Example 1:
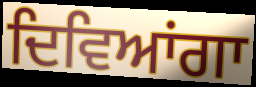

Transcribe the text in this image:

ਦਿਵਿਆਂਗਾ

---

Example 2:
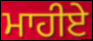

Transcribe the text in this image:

ਮਾਹੀਏ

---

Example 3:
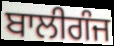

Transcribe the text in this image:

ਬਾਲੀਗੰਜ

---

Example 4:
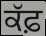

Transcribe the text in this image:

ਕੱਫ਼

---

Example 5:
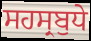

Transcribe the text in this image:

ਸਹਸ੍ਰਬੁਧੇ